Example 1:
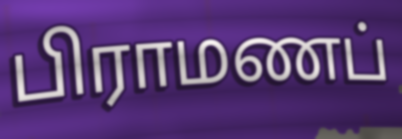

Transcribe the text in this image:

பிராமணப்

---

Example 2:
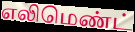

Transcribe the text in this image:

எலிமெண்ட்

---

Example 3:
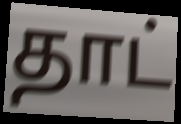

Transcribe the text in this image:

தாட்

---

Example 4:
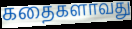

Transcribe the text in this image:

கதைகளாவது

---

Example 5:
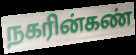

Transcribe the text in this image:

நகரின்கண்